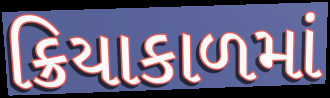
ક્રિયાકાળમાં